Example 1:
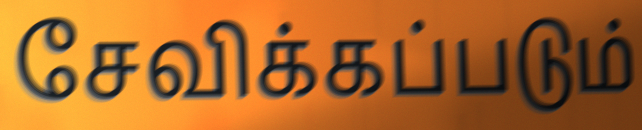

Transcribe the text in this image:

சேவிக்கப்படும்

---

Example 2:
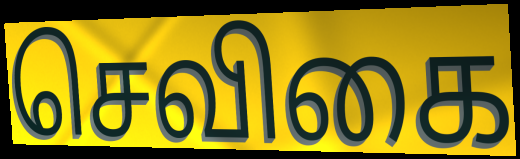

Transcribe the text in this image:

செவிகை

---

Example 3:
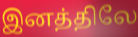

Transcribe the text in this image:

இனத்திலே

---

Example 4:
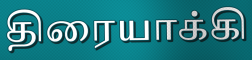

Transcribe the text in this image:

திரையாக்கி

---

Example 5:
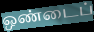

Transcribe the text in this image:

ஒண்டைப்